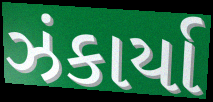
ઝંકાર્યા